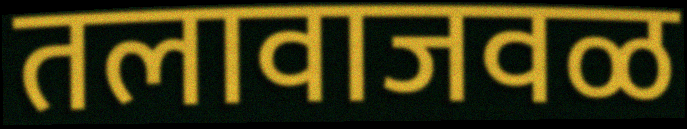
तलावाजवळ